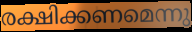
രക്ഷിക്കണമെന്നു